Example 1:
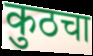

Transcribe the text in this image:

कुठचा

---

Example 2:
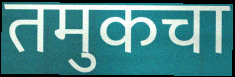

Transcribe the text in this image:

तमुकचा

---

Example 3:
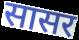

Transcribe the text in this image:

सासर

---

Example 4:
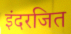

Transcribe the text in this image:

इंदरजित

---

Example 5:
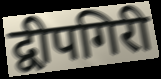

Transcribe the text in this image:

द्वीपगिरी